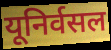
यूनिर्वसल